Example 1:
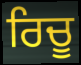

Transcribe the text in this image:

ਰਿਚੂ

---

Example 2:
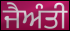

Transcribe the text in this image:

ਜੈਅੰਤੀ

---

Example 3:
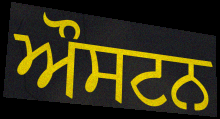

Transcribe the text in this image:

ਔਸਟਨ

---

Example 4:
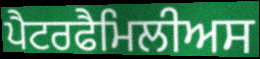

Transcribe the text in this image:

ਪੈਟਰਫੈਮਿਲੀਅਸ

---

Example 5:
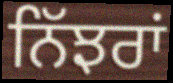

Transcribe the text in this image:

ਨਿੱਝਰਾਂ